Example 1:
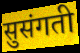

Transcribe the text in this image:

सुसंगती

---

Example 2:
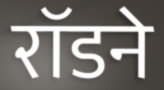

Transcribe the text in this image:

रॉडने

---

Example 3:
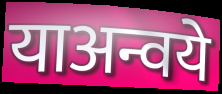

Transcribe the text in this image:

याअन्वये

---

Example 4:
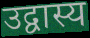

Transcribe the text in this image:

उद्वास्य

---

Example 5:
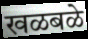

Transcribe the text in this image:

खळबळे